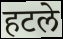
हटले